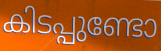
കിടപ്പുണ്ടോ